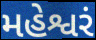
મહેશ્વરં